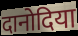
दानोदिया